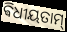
ଵିଧୀୟତାମ୍